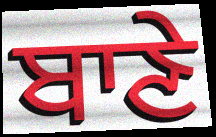
ਬਾਣੇ